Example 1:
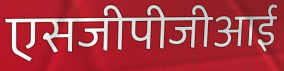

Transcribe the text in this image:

एसजीपीजीआई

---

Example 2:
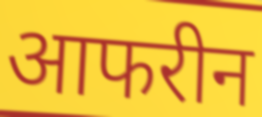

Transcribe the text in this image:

आफरीन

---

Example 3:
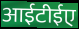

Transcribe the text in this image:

आईटीईए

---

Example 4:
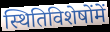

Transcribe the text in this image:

स्थितिविशेषोंमें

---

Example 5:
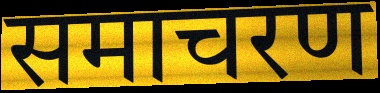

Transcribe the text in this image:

समाचरण